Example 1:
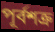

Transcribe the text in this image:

পূর্বশত্রু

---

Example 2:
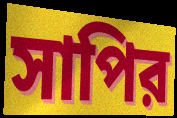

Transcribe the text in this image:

সাপির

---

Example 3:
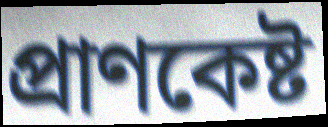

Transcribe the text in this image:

প্রাণকেষ্ট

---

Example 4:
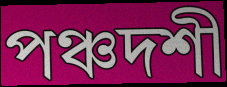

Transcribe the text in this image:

পঞ্চদশী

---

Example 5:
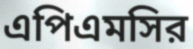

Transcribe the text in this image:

এপিএমসির